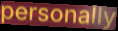
personally